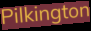
Pilkington